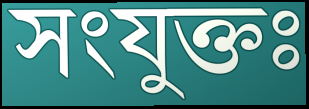
সংযুক্তঃ